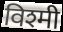
विश्मी